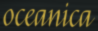
oceanica